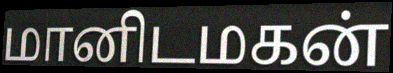
மானிடமகன்